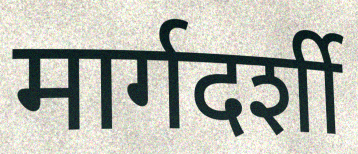
मार्गदर्शी